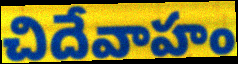
చిదేవాహం